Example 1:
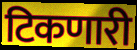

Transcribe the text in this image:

टिकणारी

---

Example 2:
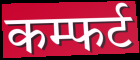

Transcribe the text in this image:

कम्फर्ट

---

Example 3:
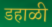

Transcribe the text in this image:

डहाळी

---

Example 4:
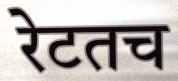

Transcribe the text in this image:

रेटतच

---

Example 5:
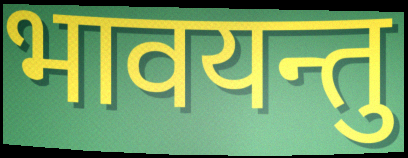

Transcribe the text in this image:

भावयन्तु